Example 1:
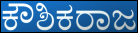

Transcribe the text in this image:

ಕೌಶಿಕರಾಜ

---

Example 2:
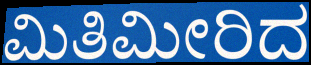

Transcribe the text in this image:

ಮಿತಿಮೀರಿದ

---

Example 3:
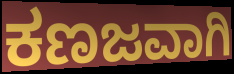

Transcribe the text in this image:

ಕಣಜವಾಗಿ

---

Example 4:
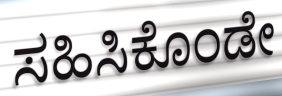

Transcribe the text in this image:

ಸಹಿಸಿಕೊಂಡೇ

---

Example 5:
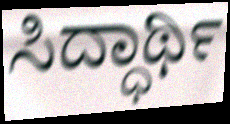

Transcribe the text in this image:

ಸಿದ್ಧಾರ್ಥಿ